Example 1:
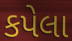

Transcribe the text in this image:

કપેલા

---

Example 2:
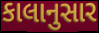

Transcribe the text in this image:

કાલાનુસાર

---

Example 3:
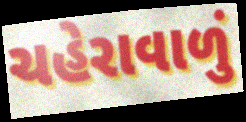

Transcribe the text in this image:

ચહેરાવાળું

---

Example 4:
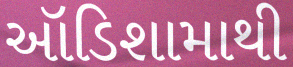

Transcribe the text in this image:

ઑડિશામાથી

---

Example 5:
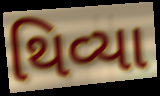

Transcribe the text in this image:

થિવ્યા